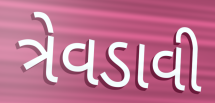
ત્રેવડાવી